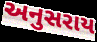
અનુસરાય